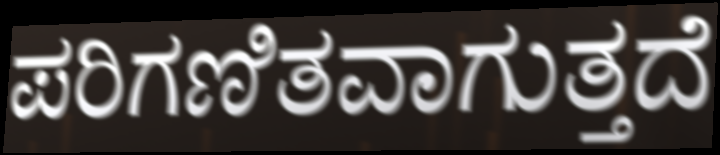
ಪರಿಗಣಿತವಾಗುತ್ತದೆ